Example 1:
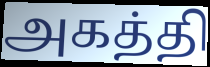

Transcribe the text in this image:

அகத்தி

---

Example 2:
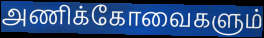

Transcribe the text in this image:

அணிக்கோவைகளும்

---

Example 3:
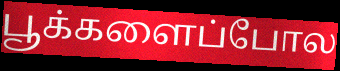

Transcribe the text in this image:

பூக்களைப்போல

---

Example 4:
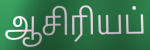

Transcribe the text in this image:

ஆசிரியப்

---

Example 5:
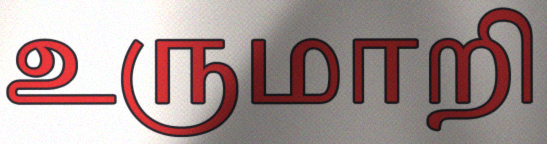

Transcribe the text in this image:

உருமாறி